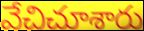
వేచిచూశారు